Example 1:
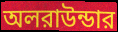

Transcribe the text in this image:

অলরাউন্ডার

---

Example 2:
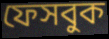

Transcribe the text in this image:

ফেসবুক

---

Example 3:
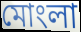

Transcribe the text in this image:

মোংলা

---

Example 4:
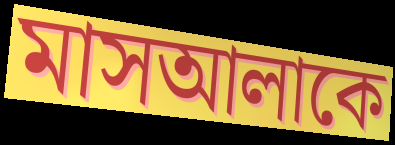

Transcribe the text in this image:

মাসআলাকে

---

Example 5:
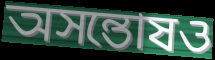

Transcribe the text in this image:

অসন্তোষও